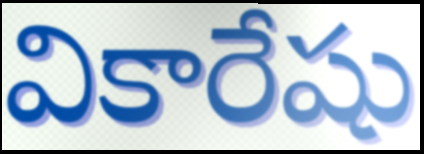
వికారేషు